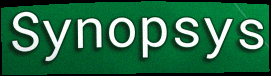
Synopsys